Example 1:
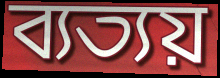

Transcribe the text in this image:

ব্যত্যয়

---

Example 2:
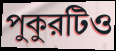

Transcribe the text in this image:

পুকুরটিও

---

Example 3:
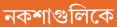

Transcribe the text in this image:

নকশাগুলিকে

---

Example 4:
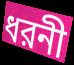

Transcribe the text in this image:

ধরনী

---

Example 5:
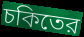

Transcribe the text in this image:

চকিতের